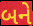
બને